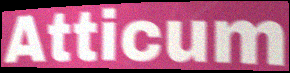
Atticum